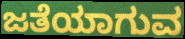
ಜತೆಯಾಗುವ